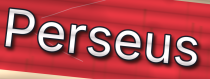
Perseus